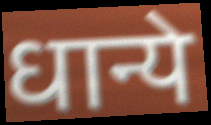
धान्ये